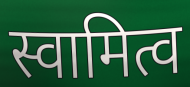
स्वामित्व